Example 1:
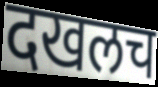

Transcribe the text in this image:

दखलच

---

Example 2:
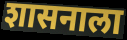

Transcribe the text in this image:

शासनाला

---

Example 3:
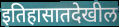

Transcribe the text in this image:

इतिहासातदेखील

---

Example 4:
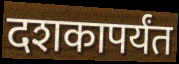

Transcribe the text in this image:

दशकापर्यंत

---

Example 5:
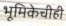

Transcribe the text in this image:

भूमिकेचीही